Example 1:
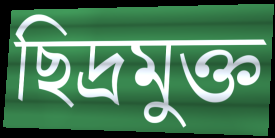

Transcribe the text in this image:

ছিদ্রমুক্ত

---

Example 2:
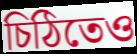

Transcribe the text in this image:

চিঠিতেও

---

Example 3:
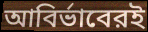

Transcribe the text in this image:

আবির্ভাবেরই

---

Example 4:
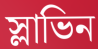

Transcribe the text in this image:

স্লাভিন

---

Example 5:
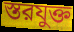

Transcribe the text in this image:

স্তরযুক্ত